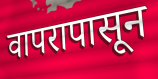
वापरापासून